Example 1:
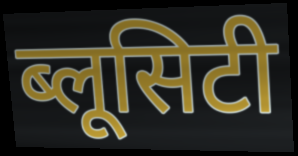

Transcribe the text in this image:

ब्लूसिटी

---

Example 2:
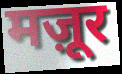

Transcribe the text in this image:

मज़ूर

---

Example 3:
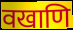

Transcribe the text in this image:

वखाणि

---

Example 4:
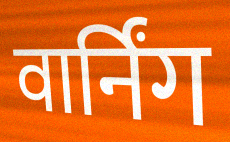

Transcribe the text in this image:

वार्निंग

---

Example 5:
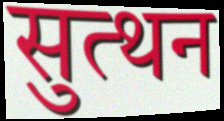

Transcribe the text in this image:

सुत्थन